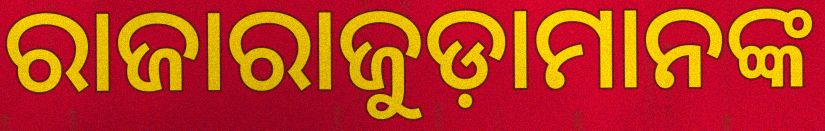
ରାଜାରାଜୁଡ଼ାମାନଙ୍କ